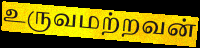
உருவமற்றவன்